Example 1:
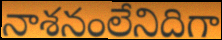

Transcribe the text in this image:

నాశనంలేనిదిగా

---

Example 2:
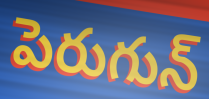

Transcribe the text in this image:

పెరుగున్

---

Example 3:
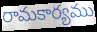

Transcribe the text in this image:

రామకార్యము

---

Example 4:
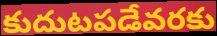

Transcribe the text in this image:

కుదుటపడేవరకు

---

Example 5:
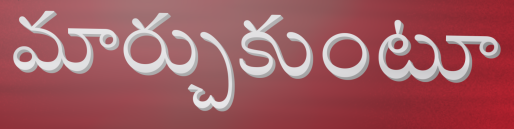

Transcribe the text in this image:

మార్చుకుంటూ